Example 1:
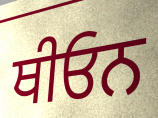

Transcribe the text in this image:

ਥੀਓਨ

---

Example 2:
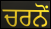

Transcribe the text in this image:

ਚਰਨੋਂ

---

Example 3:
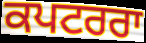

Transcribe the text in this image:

ਕਪਟਰਰਾ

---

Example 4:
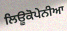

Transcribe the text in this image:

ਲਿਊਕੋਪੇਨੀਆ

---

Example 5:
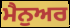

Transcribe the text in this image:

ਮੈਨੁਅਰ